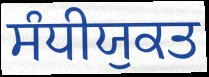
ਸੰਧੀਯੁਕਤ